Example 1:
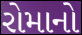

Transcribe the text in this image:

રોમાનો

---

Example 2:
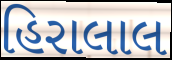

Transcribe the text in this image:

હિરાલાલ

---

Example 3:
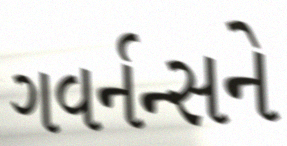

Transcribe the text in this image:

ગવર્નન્સને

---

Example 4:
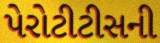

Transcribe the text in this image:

પેરોટીટીસની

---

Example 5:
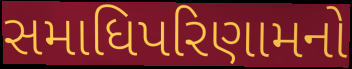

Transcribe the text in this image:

સમાધિપરિણામનો